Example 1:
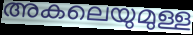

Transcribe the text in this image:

അകലെയുമുള്ള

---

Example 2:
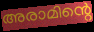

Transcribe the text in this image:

അരാമിന്റെ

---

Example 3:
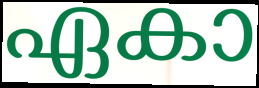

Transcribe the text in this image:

ഏകാ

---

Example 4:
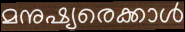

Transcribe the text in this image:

മനുഷ്യരെക്കാൾ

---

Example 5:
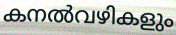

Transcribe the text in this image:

കനൽവഴികളും